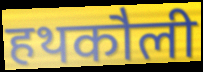
हथकौली